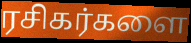
ரசிகர்களை